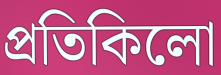
প্ৰতিকিলো